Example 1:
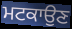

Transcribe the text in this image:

ਮਟਕਾਉਣ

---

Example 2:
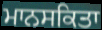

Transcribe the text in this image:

ਮਾਨਸਕਿਤਾ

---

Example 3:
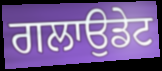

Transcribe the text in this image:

ਗਲਾਉਡੇਟ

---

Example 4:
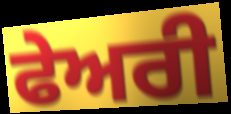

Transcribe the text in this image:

ਫੇਅਰੀ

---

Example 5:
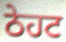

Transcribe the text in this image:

ਠੇਹਟ